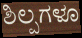
ಶಿಲ್ಪಗಳೂ